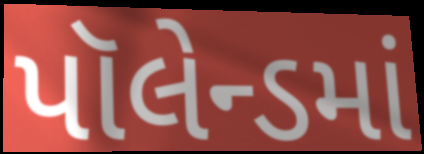
પૉલેન્ડમાં